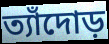
ত্যাঁদোড়